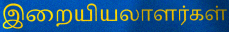
இறையியலாளர்கள்